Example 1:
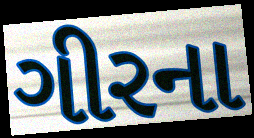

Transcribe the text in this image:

ગીરના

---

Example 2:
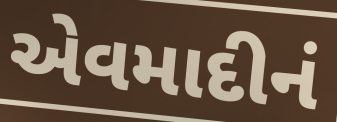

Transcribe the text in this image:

એવમાદીનં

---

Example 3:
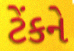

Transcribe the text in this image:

ટેંકને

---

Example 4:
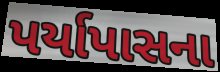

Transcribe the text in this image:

પર્યાપાસના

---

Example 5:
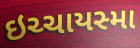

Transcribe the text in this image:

ઇચ્ચાયસ્મા